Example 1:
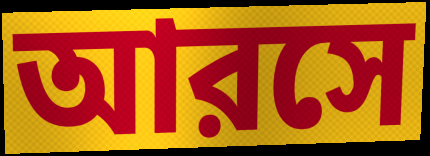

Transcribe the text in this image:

আরসে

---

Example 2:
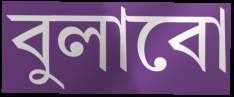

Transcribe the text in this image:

বুলাবো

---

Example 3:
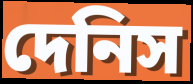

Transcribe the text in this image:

দেনিস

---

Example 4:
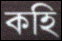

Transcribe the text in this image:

কহি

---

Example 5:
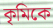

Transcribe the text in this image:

কৃমিকে